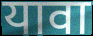
यावा